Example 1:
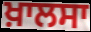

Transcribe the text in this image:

ਖ਼ਾਲਸਾ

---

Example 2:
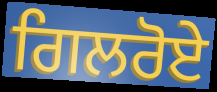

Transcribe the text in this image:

ਗਿਲਰੋਏ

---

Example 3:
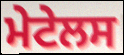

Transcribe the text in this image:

ਮੇਟੇਲਸ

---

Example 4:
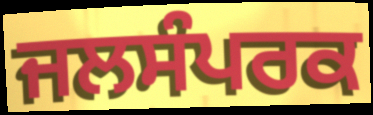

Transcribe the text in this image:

ਜਲਸੰਪਰਕ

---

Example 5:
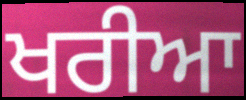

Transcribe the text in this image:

ਖਰੀਆ